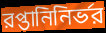
রপ্তানিনির্ভর